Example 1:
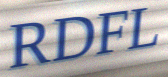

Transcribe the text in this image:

RDFL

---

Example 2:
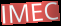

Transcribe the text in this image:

IMEC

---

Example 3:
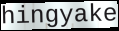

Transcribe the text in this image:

hingyake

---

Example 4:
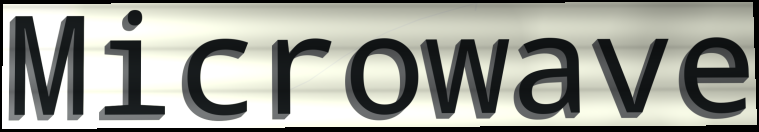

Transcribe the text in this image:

Microwave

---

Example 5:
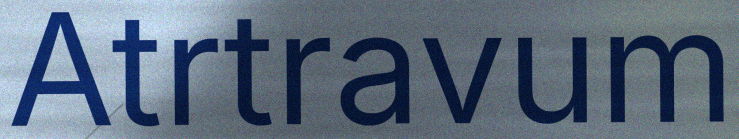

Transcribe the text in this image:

Atrtravum